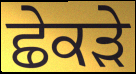
ਛੇਕੜੇ